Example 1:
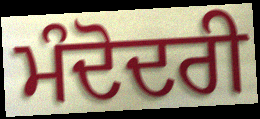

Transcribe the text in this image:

ਮੰਦੋਦਰੀ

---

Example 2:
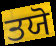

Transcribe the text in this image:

ਤਯੋ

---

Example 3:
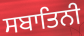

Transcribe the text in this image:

ਸਬਾਤਿਨੀ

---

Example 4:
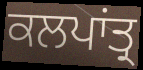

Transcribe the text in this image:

ਕਲਪਾਂਤ੍ਰ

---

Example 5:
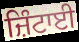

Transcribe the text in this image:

ਜ਼ਿੰਟਾਈ